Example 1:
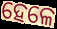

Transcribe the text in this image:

ହେଳେ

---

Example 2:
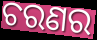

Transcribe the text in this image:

ଚରଣର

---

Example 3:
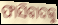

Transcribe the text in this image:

ଫାସିବାଦକୁ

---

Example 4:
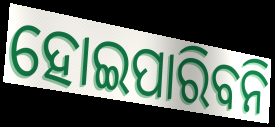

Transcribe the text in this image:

ହୋଇପାରିବନି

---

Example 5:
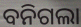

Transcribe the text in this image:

ବନିଗଲା